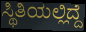
ಸ್ಥಿತಿಯಲ್ಲಿದ್ದೆ